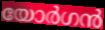
യോർഗൻ